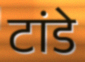
टांडे